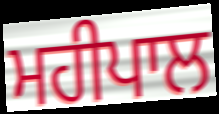
ਮਹੀਪਾਲ